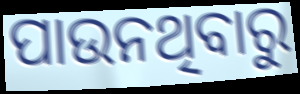
ପାଉନଥିବାରୁ